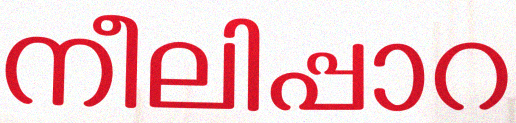
നീലിപ്പാറ